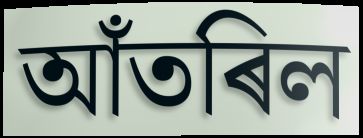
আঁতৰিল